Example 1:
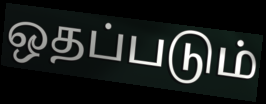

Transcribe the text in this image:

ஒதப்படும்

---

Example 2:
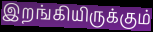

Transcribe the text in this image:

இறங்கியிருக்கும்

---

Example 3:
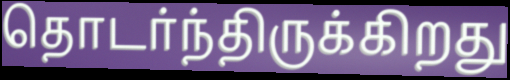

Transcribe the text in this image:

தொடர்ந்திருக்கிறது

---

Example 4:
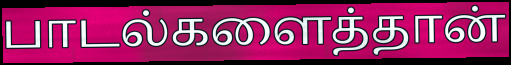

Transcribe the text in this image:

பாடல்களைத்தான்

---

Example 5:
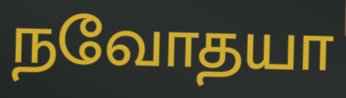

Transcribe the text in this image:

நவோதயா